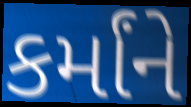
કર્માંને